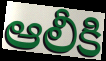
ఆలీకి